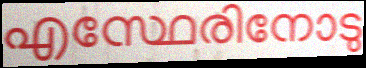
എസ്ഥേരിനോടു